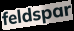
feldspar